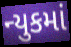
ન્યુકમાં